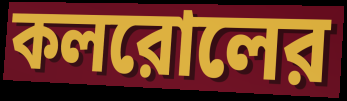
কলরোলের